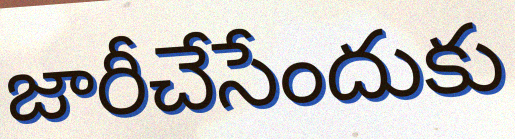
జారీచేసేందుకు